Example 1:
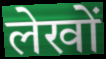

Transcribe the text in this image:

लेखों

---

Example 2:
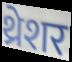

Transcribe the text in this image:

थ्रेशर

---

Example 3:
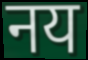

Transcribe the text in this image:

नय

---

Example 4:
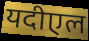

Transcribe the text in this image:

यदीएल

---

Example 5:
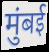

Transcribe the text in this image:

मुंबई